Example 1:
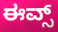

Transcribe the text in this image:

ಈವ್ಸ್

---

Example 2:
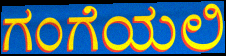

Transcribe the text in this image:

ಗಂಗೆಯಲಿ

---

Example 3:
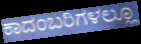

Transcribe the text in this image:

ಕಾದಂಬರಿಗಳಲ್ಲೂ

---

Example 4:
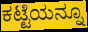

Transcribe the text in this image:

ಕಟ್ಟೆಯನ್ನೂ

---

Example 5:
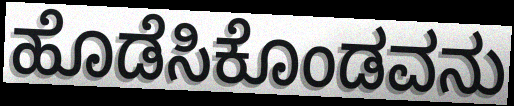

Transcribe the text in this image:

ಹೊಡೆಸಿಕೊಂಡವನು